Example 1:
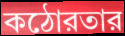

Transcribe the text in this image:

কঠোরতার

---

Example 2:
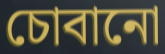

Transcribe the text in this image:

চোবানো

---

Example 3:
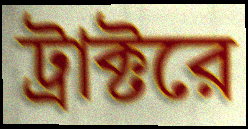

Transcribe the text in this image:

ট্রাক্টরে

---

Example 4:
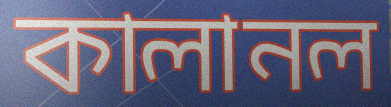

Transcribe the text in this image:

কালানল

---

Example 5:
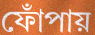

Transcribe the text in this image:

ফোঁপায়